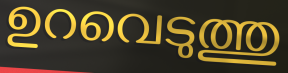
ഉറവെടുത്തു